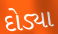
દોડ્યા